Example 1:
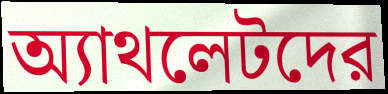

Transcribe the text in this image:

অ্যাথলেটদের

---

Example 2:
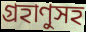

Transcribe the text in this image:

গ্রহাণুসহ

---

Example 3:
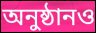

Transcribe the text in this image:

অনুষ্ঠানও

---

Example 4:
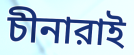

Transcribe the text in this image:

চীনারাই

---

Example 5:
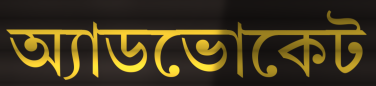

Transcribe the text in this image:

অ্যাডভোকেট